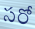
సరో